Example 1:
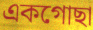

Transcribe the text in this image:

একগোছা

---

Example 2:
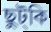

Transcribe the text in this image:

ছুট্কি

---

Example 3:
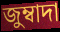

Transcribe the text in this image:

জুম্বাদা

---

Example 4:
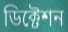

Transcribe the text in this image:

ডিক্টেশন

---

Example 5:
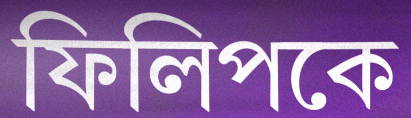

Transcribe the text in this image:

ফিলিপকে